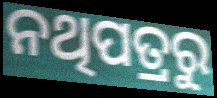
ନଥିପତ୍ରରୁ